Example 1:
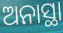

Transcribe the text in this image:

ଅନାସ୍ଥା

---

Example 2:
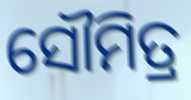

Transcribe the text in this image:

ସୌମିତ୍ର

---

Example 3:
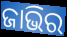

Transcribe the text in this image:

ଜାଭିର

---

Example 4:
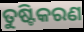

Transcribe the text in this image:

ତୁଷ୍ଟିକରଣ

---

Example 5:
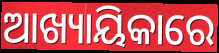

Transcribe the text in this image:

ଆଖ୍ୟାୟିକାରେ